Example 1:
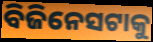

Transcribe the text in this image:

ବିଜିନେସଟାକୁ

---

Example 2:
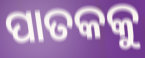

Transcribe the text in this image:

ପାତକକୁ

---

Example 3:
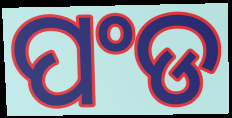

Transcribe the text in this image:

ପଂଡ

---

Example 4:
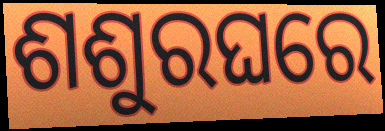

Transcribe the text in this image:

ଶଶୁରଘରେ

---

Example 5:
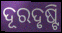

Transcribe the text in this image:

ଦୂରଦୃଷ୍ଟି